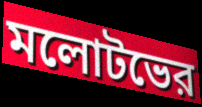
মলোটভের